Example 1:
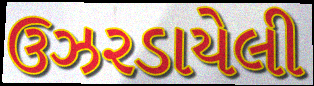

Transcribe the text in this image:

ઉઝરડાયેલી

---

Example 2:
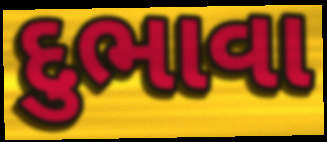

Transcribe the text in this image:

દુભાવા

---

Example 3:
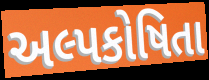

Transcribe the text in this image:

અલ્પકોષિતા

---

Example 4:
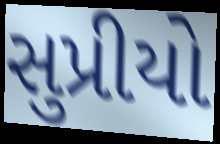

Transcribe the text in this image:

સુપ્રીયો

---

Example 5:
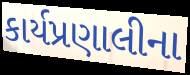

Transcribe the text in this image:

કાર્યપ્રણાલીના